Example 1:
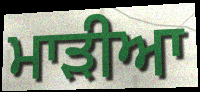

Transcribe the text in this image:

ਮਾੜੀਆ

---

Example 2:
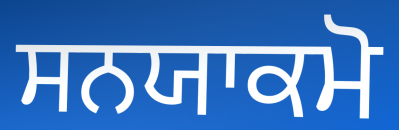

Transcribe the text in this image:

ਸਨਯਾਕਮੋ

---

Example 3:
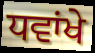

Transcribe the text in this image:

ਧਵਾਂਖੇ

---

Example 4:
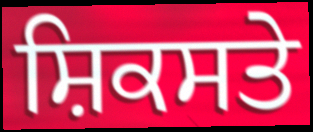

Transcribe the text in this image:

ਸ਼ਿਕਸਤੇ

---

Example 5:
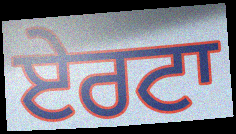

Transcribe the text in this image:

ਏਰਟਾ